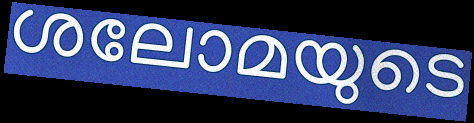
ശലോമയുടെ